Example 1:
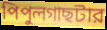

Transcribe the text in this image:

পিপুলগাছটার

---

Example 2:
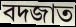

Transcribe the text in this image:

বদজাত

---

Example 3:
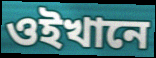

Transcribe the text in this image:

ওইখানে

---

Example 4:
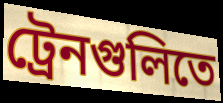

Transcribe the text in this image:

ট্রেনগুলিতে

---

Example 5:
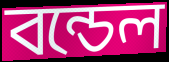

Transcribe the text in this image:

বন্ডেল